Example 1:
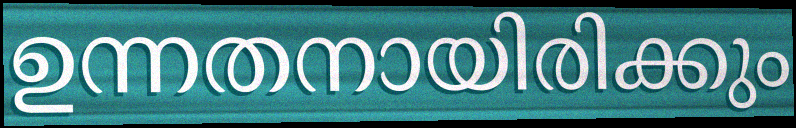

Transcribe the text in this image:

ഉന്നതനായിരിക്കും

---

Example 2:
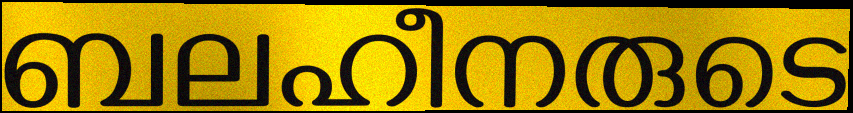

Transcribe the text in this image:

ബലഹീനരുടെ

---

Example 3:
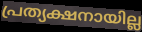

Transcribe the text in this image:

പ്രത്യക്ഷനായില്ല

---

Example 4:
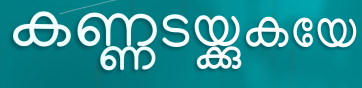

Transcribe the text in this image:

കണ്ണടയ്ക്കുകയേ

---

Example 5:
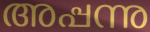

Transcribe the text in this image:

അപ്പന്നു